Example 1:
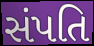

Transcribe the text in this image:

સંપતિ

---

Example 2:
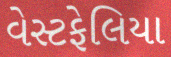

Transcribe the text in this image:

વેસ્ટફેલિયા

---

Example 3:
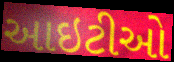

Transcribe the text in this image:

આઇટીઓ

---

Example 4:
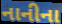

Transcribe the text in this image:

નાનીના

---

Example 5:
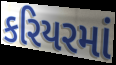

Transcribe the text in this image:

કરિયરમાં